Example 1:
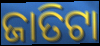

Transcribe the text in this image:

ଜାତିଟା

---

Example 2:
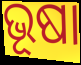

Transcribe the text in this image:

ଭୂଷା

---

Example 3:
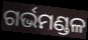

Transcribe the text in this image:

ଗର୍ଭମଣ୍ଡଳ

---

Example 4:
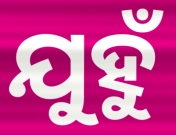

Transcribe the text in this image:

ଯୁହୁଁ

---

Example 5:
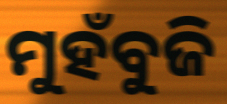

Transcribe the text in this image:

ମୁହଁବୁଜି